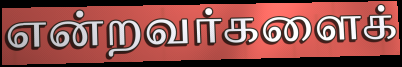
என்றவர்களைக்